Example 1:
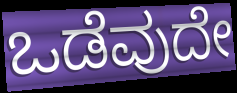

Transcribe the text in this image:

ಒಡೆವುದೇ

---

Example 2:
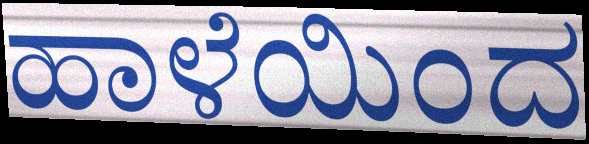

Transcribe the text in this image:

ಹಾಳೆಯಿಂದ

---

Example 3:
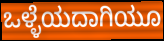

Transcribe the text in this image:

ಒಳ್ಳೆಯದಾಗಿಯೂ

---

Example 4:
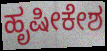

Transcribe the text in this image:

ಹೃಷೀಕೇಶ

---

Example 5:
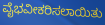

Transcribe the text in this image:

ವೈಭವೀಕರಿಸಲಾಯಿತು